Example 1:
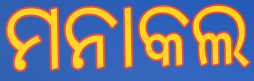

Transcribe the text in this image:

ମନାକଲ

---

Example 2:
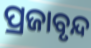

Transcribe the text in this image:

ପ୍ରଜାବୃନ୍ଦ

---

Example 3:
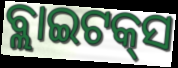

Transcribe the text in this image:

ବ୍ଲାଇଟକ୍‌ସ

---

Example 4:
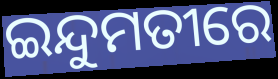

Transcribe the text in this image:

ଇନ୍ଦୁମତୀରେ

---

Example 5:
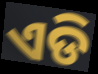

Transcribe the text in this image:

ଏଡି